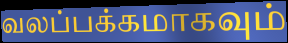
வலப்பக்கமாகவும்